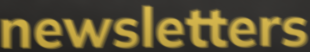
newsletters